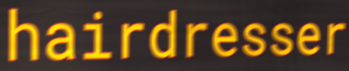
hairdresser